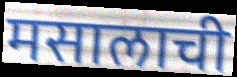
मसालाची